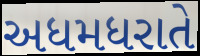
અધમધરાતે